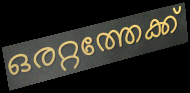
ഒരറ്റത്തേക്ക്